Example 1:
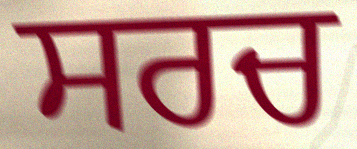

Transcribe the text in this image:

ਸਰਚ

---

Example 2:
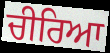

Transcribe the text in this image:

ਚੀਰਿਆ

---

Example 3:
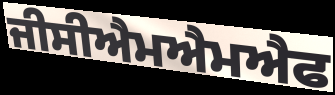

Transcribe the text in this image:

ਜੀਸੀਐਮਐਮਐਫ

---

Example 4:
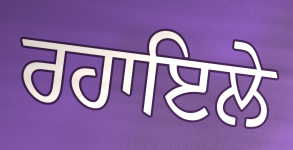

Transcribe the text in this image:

ਰਹਾਇਲੇ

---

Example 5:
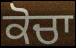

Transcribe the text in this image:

ਕੋਚਾ